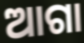
ଆଗା